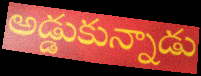
అడ్డుకున్నాడు